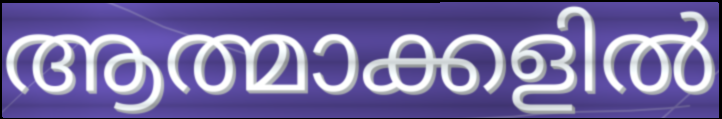
ആത്മാക്കളിൽ